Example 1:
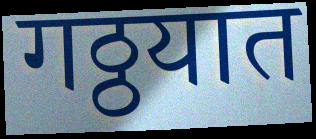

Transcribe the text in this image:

गठ्ठयात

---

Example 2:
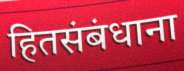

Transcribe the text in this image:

हितसंबंधाना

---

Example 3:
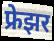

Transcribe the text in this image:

फ्रेझर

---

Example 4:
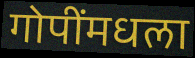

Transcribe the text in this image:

गोपींमधला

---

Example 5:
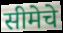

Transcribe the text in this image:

सीमेचे